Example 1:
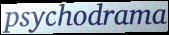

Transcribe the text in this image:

psychodrama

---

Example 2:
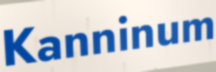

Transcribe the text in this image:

Kanninum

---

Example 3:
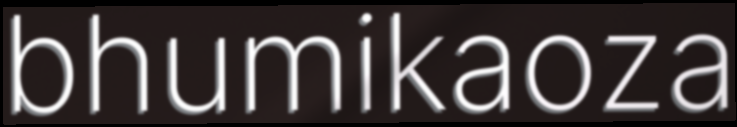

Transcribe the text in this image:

bhumikaoza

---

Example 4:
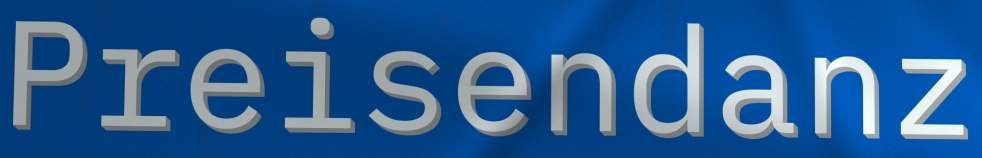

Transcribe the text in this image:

Preisendanz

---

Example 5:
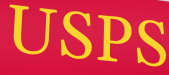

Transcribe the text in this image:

USPS